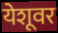
येशूवर